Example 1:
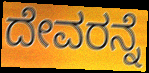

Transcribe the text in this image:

ದೇವರನ್ನೆ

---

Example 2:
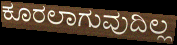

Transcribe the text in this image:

ಕೂರಲಾಗುವುದಿಲ್ಲ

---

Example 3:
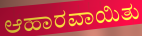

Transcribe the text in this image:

ಆಹಾರವಾಯಿತು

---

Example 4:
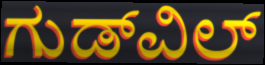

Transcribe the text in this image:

ಗುಡ್‌ವಿಲ್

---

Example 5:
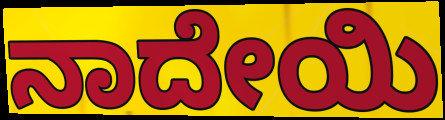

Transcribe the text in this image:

ನಾದೇಯಿ